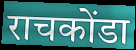
राचकोंडा